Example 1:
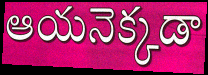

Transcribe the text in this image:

ఆయనెక్కడా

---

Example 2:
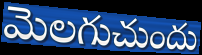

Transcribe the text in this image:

మెలగుచుందు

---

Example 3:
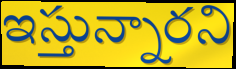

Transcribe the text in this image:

ఇస్తున్నారని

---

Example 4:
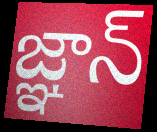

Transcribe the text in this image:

జ్ఞాన్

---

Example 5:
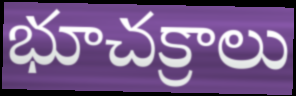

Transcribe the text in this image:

భూచక్రాలు